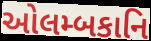
ઓલમ્બકાનિ